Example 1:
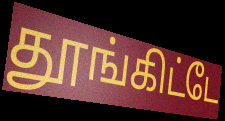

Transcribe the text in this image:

தூங்கிட்டே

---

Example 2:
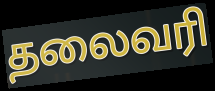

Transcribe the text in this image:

தலைவரி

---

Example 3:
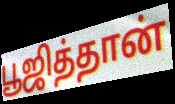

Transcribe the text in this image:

பூஜித்தான்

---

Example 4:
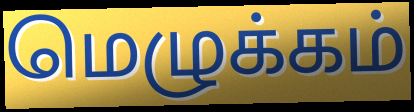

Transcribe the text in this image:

மெழுக்கம்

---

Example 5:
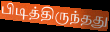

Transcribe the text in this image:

பிடித்திருந்தது